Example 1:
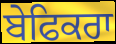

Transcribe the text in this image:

ਬੇਫਿਕਰਾ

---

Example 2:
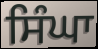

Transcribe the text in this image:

ਸਿੰਘਾ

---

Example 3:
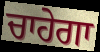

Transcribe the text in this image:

ਚਾਹੇਗਾ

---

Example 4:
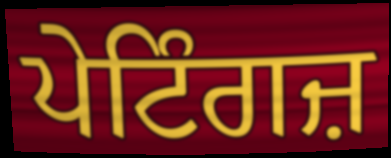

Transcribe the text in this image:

ਪੇਟਿੰਗਜ਼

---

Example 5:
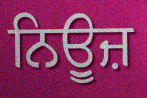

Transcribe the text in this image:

ਨਿਉੂਜ਼